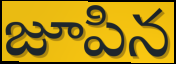
జూపిన